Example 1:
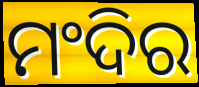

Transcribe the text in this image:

ମଂଦିର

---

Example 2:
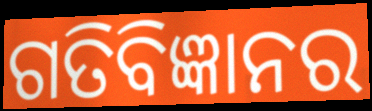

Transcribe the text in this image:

ଗତିବିଜ୍ଞାନର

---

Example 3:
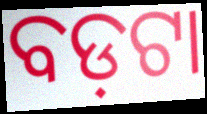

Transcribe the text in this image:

ବଡ଼ଟା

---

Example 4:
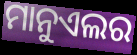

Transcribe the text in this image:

ମାନୁଏଲର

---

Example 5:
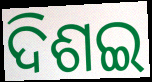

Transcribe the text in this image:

ଦିଶଇ